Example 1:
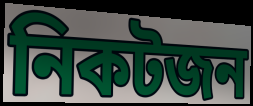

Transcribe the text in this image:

নিকটজন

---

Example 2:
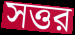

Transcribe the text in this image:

সত্তর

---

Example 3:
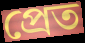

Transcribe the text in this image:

প্রেত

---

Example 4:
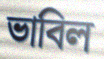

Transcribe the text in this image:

ভাবিল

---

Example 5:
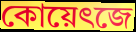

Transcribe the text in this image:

কোয়েৎজে